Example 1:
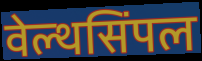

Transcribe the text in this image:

वेल्थसिंपल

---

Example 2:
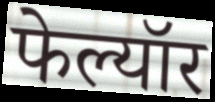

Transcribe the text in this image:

फेल्यॉर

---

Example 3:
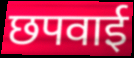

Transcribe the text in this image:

छपवाई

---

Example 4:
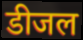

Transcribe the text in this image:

डीजल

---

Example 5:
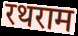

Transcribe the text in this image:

रथराम